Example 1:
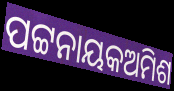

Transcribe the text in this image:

ପଟ୍ଟନାୟକଅମିଶ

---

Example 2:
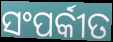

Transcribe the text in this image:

ସଂପର୍କୀତ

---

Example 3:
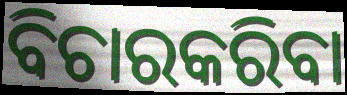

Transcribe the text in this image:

ବିଚାରକରିବା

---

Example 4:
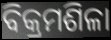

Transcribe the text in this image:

ବିକ୍ରମଶିଳା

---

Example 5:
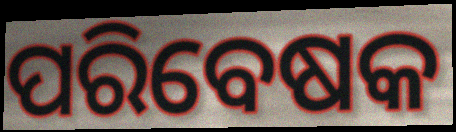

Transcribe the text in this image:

ପରିବେଷକ